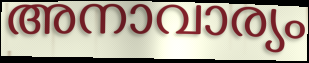
അനാവാര്യം